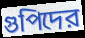
গুপিদের